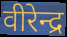
वीरेन्द्र